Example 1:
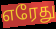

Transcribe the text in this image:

எரேது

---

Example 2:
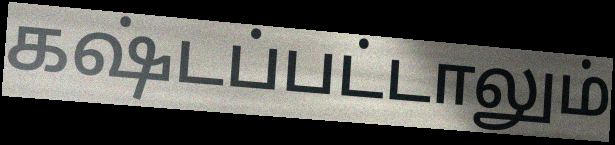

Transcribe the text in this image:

கஷ்டப்பட்டாலும்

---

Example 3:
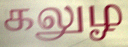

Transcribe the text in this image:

கலுழ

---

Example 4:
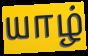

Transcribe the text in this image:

யாழ்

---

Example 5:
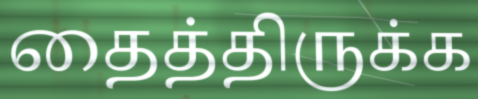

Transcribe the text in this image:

தைத்திருக்க